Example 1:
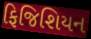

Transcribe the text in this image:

ફિજિશિયન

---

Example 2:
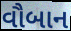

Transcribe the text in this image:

વૌબાન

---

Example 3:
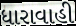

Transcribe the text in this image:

ધારાવાહી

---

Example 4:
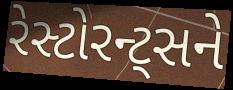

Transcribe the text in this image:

રેસ્ટોરન્ટ્સને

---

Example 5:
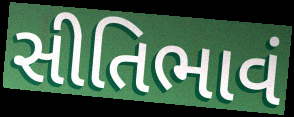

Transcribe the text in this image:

સીતિભાવં